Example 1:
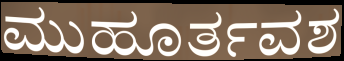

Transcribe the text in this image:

ಮುಹೂರ್ತವಶ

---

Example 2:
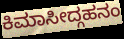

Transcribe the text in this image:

ಕಿಮಾಸೀದ್ಗಹನಂ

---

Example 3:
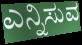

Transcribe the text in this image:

ಎನ್ನಿಸುವ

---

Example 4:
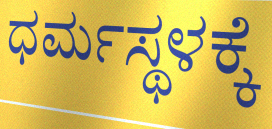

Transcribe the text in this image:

ಧರ್ಮಸ್ಥಳಕ್ಕೆ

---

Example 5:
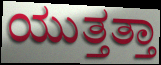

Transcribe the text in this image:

ಯುತ್ತತ್ತಾ